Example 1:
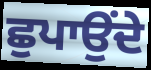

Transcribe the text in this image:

ਛੁਪਾਉਂਦੇ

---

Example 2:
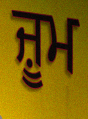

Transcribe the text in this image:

ਜ਼ੂਮ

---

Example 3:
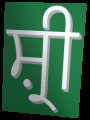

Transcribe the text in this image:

ਸ਼੍ਰੀ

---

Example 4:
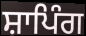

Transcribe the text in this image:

ਸ਼ਾਪਿੰਗ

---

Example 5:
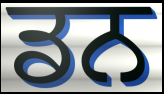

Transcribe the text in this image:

ਡਨ